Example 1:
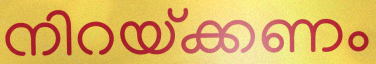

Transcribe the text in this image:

നിറയ്‌ക്കണം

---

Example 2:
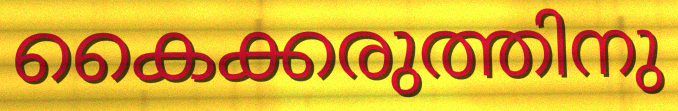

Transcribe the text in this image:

കൈക്കരുത്തിനു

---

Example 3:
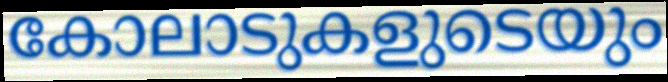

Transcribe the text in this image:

കോലാടുകളുടെയും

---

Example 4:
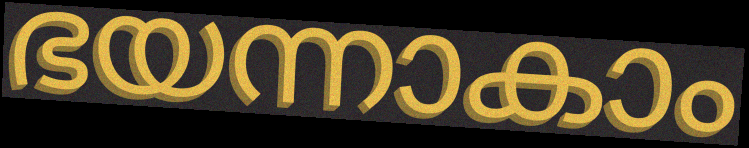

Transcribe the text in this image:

ഭയന്നാകാം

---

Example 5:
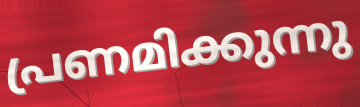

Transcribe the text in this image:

പ്രണമിക്കുന്നു